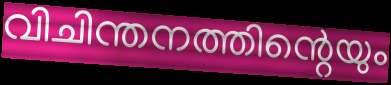
വിചിന്തനത്തിന്റെയും